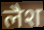
लैश